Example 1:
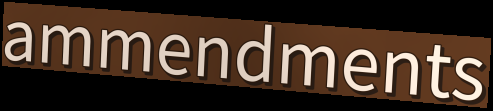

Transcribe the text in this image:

ammendments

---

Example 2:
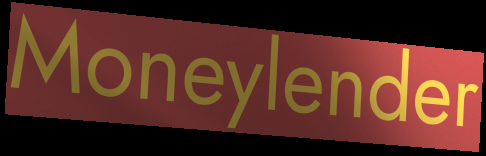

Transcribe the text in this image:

Moneylender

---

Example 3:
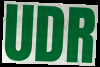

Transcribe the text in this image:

UDR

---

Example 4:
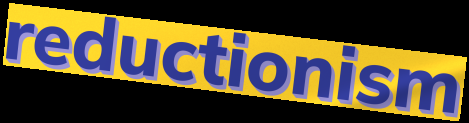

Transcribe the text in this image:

reductionism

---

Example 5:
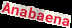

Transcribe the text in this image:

Anabaena